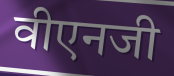
वीएनजी